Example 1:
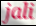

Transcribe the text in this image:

jali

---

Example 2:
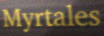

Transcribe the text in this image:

Myrtales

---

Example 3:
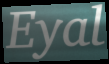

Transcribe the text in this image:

Eyal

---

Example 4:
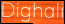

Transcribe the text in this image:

Dighali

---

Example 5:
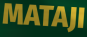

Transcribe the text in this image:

MATAJI